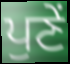
ਪੁਣੇਂ